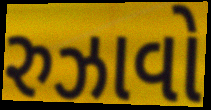
રુઝાવો